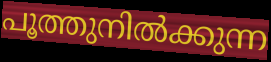
പൂത്തുനിൽക്കുന്ന